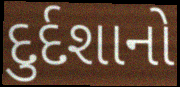
દુર્દશાનો